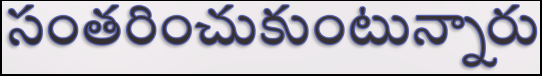
సంతరించుకుంటున్నారు